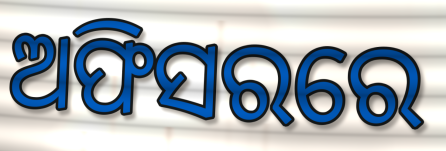
ଅଫିସରରେ